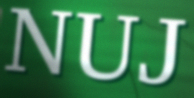
NUJ